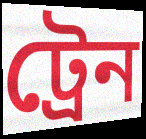
ট্রেন